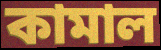
কামাল